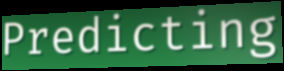
Predicting